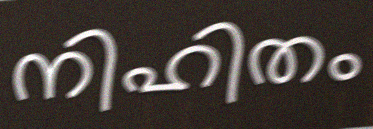
നിഹിതം